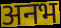
अनभ